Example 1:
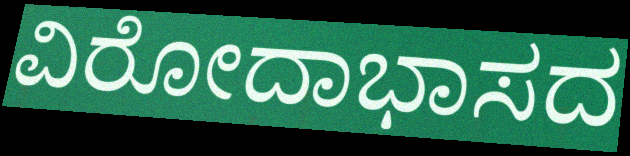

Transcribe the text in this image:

ವಿರೋದಾಭಾಸದ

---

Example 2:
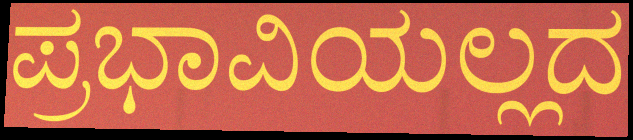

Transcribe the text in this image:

ಪ್ರಭಾವಿಯಲ್ಲದ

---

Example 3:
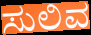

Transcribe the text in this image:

ಸುಲಿವ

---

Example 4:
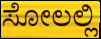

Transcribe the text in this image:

ಸೋಲಲ್ಲಿ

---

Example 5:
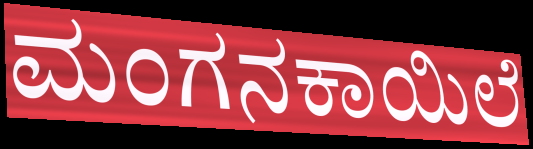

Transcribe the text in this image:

ಮಂಗನಕಾಯಿಲೆ